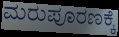
ಮರುಪೂರಣಕ್ಕೆ